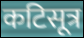
कटिसूत्र